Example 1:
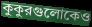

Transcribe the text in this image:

কুকুরগুলোকেও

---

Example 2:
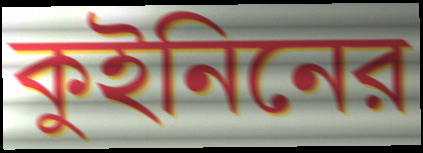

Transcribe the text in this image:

কুইনিনের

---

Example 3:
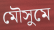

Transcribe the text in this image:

মৌসুমে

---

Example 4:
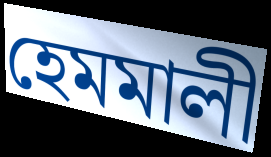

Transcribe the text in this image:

হেমমালী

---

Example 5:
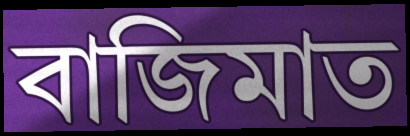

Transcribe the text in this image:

বাজিমাত